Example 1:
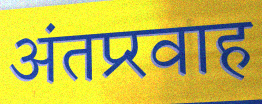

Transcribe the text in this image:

अंतप्र्रवाह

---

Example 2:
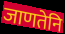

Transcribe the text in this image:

जाणतेनि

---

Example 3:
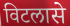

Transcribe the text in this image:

विटलासे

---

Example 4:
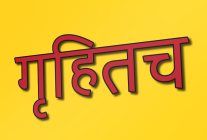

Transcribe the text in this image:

गृहितच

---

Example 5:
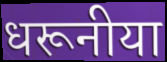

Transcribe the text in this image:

धरूनीया